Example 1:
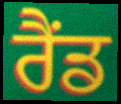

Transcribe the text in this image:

ਰੈਂਡ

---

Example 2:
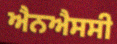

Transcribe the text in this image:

ਐਨਐਸਸੀ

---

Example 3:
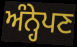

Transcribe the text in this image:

ਅੰਨ੍ਹੇਪਣ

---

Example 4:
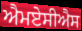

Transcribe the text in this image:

ਐਮਏਸੀਐਸ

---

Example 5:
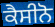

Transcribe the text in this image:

ਕੈਸੀਨੋ